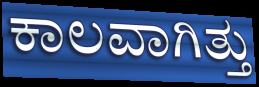
ಕಾಲವಾಗಿತ್ತು